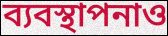
ব্যবস্থাপনাও